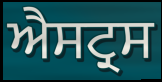
ਐਸਟ੍ਰਸ